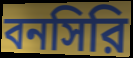
বনসিরি